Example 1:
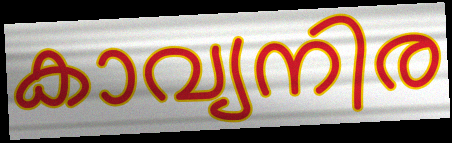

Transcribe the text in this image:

കാവ്യനിര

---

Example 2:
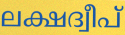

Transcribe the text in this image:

ലക്ഷദ്വീപ്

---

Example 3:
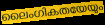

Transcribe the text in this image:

ലൈംഗികതയേയും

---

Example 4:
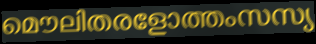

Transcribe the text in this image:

മൌലിതരളോത്തംസസ്യ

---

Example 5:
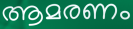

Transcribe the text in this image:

ആമരണം